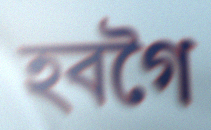
হবগৈ